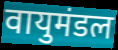
वायुमंडल